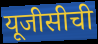
यूजीसीची